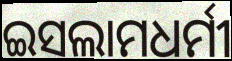
ଇସଲାମଧର୍ମୀ